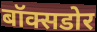
बॉक्सडोर